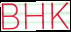
BHK